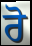
ਰੋ